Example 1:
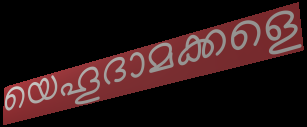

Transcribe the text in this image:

യെഹൂദാമക്കളെ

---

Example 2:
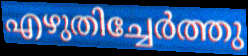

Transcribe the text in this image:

എഴുതിച്ചേർത്തു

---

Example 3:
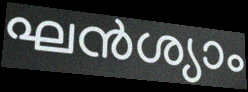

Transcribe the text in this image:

ഘൻശ്യാം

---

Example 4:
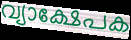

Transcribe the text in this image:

വ്യാക്ഷേപക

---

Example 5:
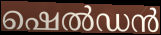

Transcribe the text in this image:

ഷെൽഡൻ